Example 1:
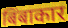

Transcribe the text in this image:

बिंबाकार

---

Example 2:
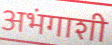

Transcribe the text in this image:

अभंगाशी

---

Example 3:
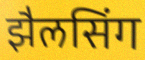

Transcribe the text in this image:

झैलसिंग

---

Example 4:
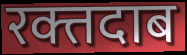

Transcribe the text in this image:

रक्तदाब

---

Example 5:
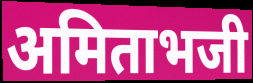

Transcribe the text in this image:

अमिताभजी